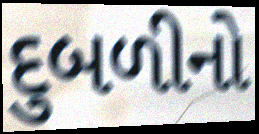
દુબળીનો